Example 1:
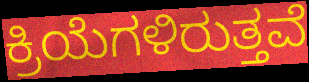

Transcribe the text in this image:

ಕ್ರಿಯೆಗಳಿರುತ್ತವೆ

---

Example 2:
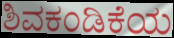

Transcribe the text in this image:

ಶಿವಕಂಡಿಕೆಯ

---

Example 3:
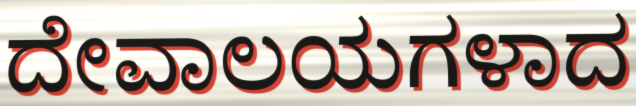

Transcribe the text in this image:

ದೇವಾಲಯಗಳಾದ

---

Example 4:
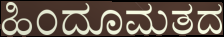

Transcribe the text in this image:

ಹಿಂದೂಮತದ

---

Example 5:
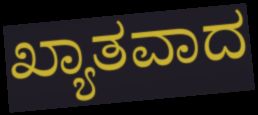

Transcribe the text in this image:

ಖ್ಯಾತವಾದ